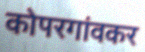
कोपरगांवकर